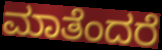
ಮಾತೆಂದರೆ